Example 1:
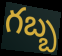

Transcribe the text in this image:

గబ్బ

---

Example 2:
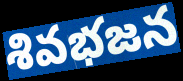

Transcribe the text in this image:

శివభజన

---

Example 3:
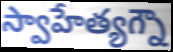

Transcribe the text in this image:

స్వాహేత్యగ్నౌ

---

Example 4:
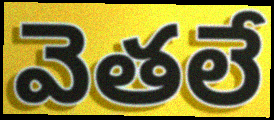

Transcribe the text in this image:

వెతలే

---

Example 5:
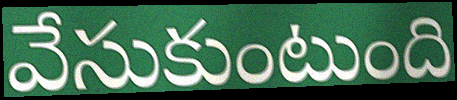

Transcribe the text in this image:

వేసుకుంటుంది